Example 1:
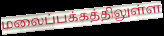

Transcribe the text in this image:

மலைப்பக்கத்திலுள்ள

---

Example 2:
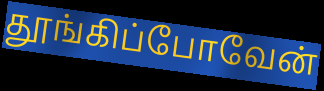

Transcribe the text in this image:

தூங்கிப்போவேன்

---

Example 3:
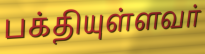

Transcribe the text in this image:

பக்தியுள்ளவர்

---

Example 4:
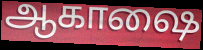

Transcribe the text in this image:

ஆகாஷை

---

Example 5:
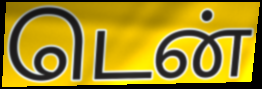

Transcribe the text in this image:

டென்